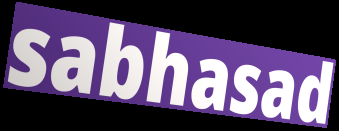
sabhasad